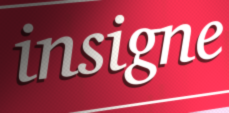
insigne